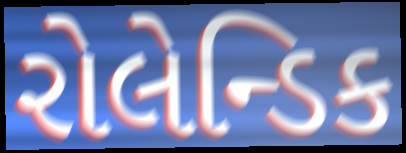
રોલેન્ડિક